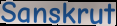
Sanskrut